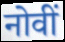
नोवीं